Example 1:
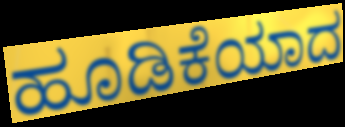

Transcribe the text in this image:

ಹೂಡಿಕೆಯಾದ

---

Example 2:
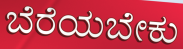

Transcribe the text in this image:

ಬೆರೆಯಬೇಕು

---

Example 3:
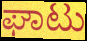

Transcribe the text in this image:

ಘಾಟು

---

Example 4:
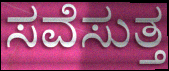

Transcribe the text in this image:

ಸವೆಸುತ್ತ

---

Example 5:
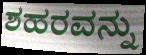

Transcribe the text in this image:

ಶಹರವನ್ನು